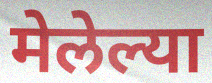
मेलेल्या